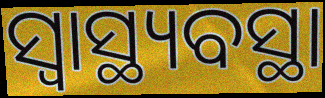
ସ୍ୱାସ୍ଥ୍ୟବସ୍ଥା